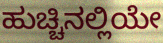
ಹುಚ್ಚಿನಲ್ಲಿಯೇ